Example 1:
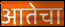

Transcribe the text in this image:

आतेचा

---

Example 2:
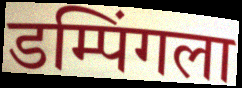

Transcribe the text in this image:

डम्पिंगला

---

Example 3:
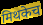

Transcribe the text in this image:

मिथकेच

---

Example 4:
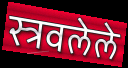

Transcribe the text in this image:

स्त्रवलेले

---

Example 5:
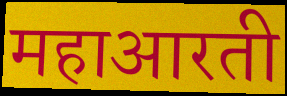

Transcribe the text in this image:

महाआरती